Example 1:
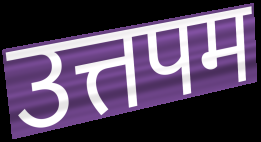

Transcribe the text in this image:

उत्तपम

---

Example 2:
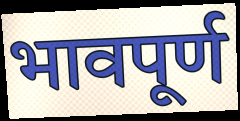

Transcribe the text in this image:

भावपूर्ण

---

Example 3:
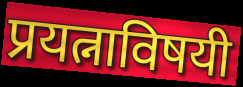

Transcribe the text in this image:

प्रयत्नाविषयी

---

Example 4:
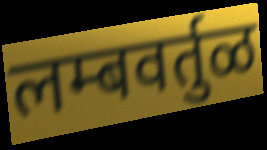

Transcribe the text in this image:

लम्बवर्तुळ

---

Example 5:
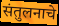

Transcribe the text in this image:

संतुलनाचे